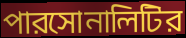
পারসোনালিটির